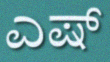
ಎಷ್